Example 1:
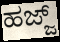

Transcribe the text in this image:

ಹಜ್ಜ್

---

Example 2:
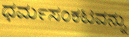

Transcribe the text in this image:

ಧರ್ಮಸಂಕಟವನ್ನು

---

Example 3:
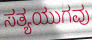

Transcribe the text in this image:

ಸತ್ಯಯುಗವು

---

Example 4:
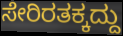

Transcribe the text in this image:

ಸೇರಿರತಕ್ಕದ್ದು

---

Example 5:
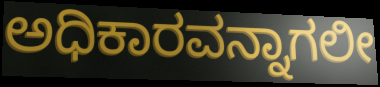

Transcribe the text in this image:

ಅಧಿಕಾರವನ್ನಾಗಲೀ